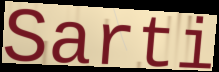
Sarti